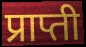
प्राप्ती